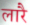
लारै